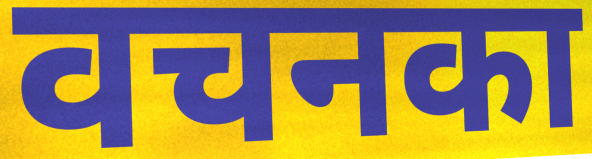
वचनका